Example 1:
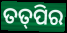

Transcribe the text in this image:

ତତ୍‌ପିର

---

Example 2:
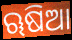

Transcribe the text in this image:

ୠଷିଆ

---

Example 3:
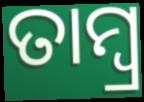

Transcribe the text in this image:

ତାମ୍ବ୍ର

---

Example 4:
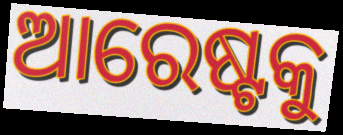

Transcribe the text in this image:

ଆରେଷ୍ଟକୁ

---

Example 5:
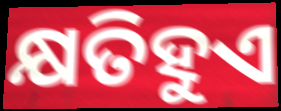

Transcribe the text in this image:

କ୍ଷତିହୁଏ